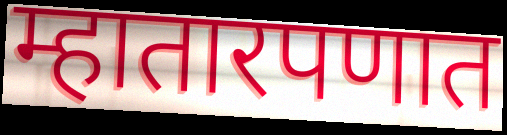
म्हातारपणात